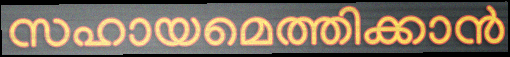
സഹായമെത്തിക്കാൻ